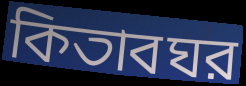
কিতাবঘর